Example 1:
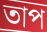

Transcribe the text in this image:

তাপ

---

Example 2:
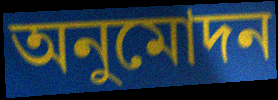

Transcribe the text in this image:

অনুমোদন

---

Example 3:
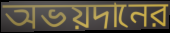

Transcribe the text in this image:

অভয়দানের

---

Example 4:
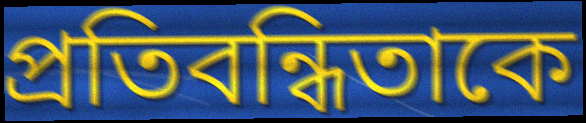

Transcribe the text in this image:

প্রতিবন্ধিতাকে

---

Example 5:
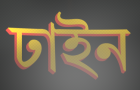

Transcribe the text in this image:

ঢাইন